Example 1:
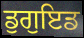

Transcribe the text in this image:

ਡੁਗੁਇਡ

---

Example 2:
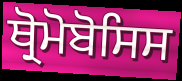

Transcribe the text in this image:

ਥ੍ਰੋਮੋਬੋਸਿਸ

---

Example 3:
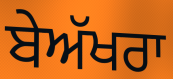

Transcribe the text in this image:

ਬੇਅੱਖਰਾ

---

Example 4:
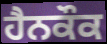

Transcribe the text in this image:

ਹੈਨਕੌਕ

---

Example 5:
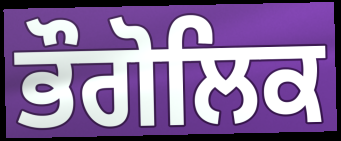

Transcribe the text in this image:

ਭੌਗੋਲਿਕ